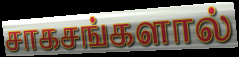
சாகசங்களால்